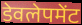
डेवलेपमेंट